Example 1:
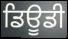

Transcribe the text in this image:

ਡਿਊਡੀ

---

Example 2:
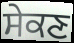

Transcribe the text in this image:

ਸੇਕਣ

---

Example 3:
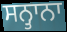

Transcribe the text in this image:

ਸਨ੍ਤਾਨਾ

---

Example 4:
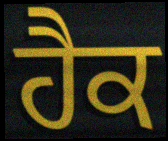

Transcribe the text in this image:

ਹੈਕ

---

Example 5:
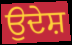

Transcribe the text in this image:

ਉਦੇਸ਼